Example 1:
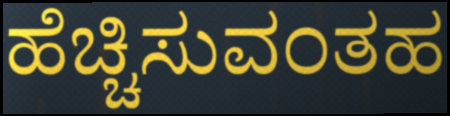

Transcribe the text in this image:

ಹೆಚ್ಚಿಸುವಂತಹ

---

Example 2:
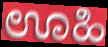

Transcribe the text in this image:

ಊಹಿ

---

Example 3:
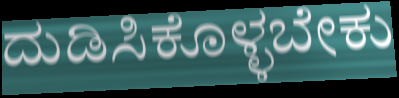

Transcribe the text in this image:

ದುಡಿಸಿಕೊಳ್ಳಬೇಕು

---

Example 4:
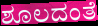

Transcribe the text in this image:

ಶೂಲದಂತೆ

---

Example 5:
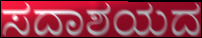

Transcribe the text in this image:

ಸದಾಶಯದ